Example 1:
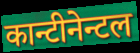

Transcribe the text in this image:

कान्टीनेन्टल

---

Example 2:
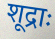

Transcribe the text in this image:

शूद्राः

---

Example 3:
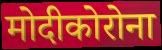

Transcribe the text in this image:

मोदीकोरोना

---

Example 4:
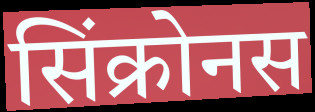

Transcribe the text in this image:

सिंक्रोनस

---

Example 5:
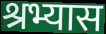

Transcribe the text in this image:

श्रभ्यास